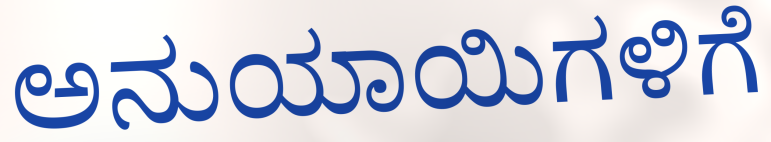
ಅನುಯಾಯಿಗಳಿಗೆ